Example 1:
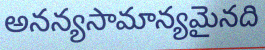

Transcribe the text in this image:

అనన్యసామాన్యమైనది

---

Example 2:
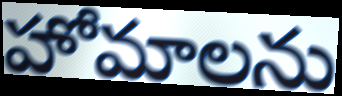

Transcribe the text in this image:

హోమాలను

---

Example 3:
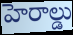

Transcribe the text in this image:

హెరాల్డు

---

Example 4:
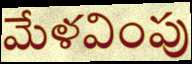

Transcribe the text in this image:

మేళవింపు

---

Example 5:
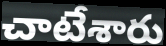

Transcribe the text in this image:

చాటేశారు